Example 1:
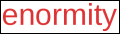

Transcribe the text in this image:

enormity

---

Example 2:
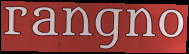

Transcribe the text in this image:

rangno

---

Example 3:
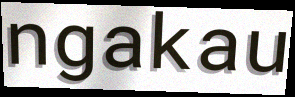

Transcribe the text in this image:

ngakau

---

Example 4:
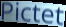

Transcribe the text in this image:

Pictet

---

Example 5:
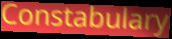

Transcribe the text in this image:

Constabulary